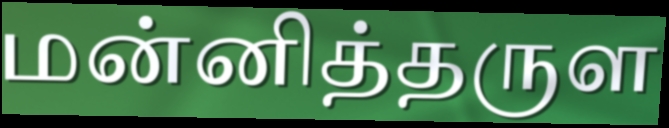
மன்னித்தருள